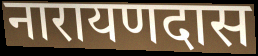
नारायणदास